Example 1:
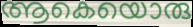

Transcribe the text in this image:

ആകെയൊരു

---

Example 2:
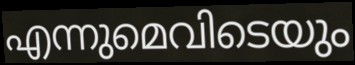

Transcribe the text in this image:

എന്നുമെവിടെയും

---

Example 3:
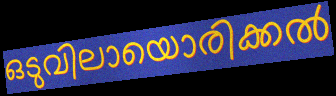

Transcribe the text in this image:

ഒടുവിലായൊരിക്കൽ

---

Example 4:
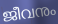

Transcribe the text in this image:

ജീവനും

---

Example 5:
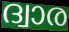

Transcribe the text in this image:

ദ്വാര